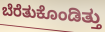
ಬೆರೆತುಕೊಂಡಿತ್ತು